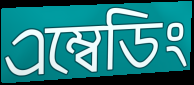
এম্বেডিং